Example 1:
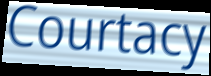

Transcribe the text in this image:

Courtacy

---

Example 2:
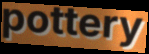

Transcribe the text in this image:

pottery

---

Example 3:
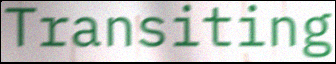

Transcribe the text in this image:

Transiting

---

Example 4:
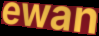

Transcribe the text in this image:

ewan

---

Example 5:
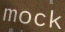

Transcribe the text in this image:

mock